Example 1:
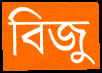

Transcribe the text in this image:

বিজু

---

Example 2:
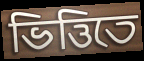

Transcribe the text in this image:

ভিত্তিতে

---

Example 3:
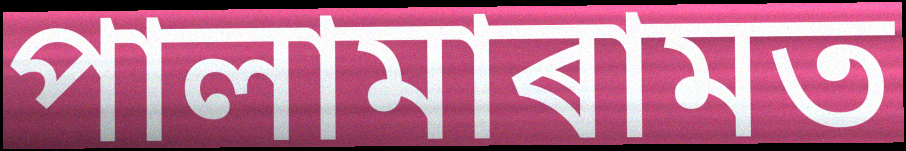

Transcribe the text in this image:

পালামাৰামত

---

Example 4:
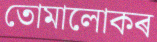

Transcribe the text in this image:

তোমালোকৰ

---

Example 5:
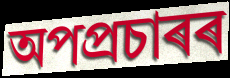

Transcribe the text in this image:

অপপ্ৰচাৰৰ